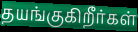
தயங்குகிறீர்கள்